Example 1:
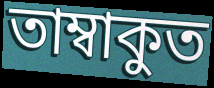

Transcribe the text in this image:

তাম্বাকুত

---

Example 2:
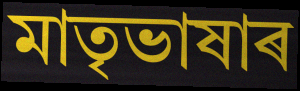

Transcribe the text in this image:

মাতৃভাষাৰ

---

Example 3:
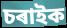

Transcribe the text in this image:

চৰাইক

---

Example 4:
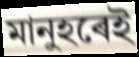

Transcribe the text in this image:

মানুহৰেই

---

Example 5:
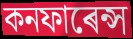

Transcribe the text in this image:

কনফাৰেন্স